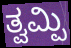
ತ್ವಮ್ಪಿ